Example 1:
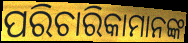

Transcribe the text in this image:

ପରିଚାରିକାମାନଙ୍କ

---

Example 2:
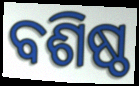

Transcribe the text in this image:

ବଶିଷ୍ଠ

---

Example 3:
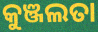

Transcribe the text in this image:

କୁଞ୍ଜଲତା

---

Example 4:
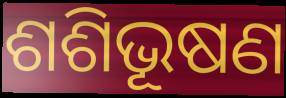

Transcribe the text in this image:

ଶଶିଭୂଷଣ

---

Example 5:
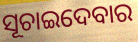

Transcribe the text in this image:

ସୂଚାଇଦେବାର